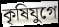
কৃষিযুগে